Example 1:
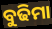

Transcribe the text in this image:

ବୁଢିମା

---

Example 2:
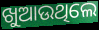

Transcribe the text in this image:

ଖୁଆଉଥିଲେ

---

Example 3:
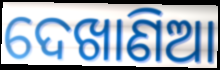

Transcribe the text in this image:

ଦେଖାଣିଆ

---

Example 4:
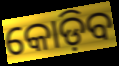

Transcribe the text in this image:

କୋଡ଼ିବ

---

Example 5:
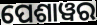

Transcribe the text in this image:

ପେଶାୱର